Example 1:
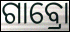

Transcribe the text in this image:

ଗାବ୍ରୋ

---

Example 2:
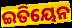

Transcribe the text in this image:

ଇତିୟେନ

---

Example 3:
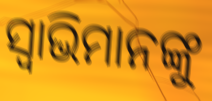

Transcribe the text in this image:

ସ୍ୱାଭିମାନଙ୍କୁ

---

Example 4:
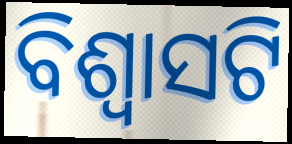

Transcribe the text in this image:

ବିଶ୍ୱାସଟି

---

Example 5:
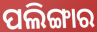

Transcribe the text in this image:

ପଲିଙ୍ଗାର